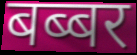
बब्बर